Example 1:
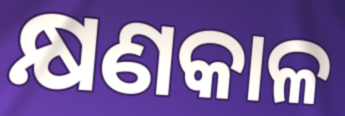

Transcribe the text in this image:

କ୍ଷଣକାଳ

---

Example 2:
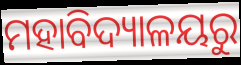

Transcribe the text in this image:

ମହାବିଦ୍ୟାଳୟରୁ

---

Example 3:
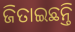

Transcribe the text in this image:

ଜିତାଇଛନ୍ତି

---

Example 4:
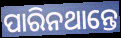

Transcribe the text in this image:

ପାରିନଥାନ୍ତେ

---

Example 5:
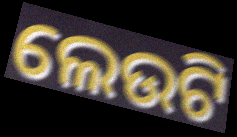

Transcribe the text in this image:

ଲେଉଟି